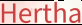
Hertha